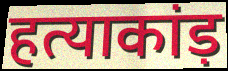
हत्याकांड़